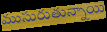
ముసురుతున్నాయి